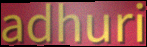
adhuri